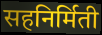
सहनिर्मिती